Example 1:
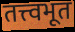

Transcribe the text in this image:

तत्त्वभूत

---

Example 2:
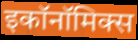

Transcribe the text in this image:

इकॉनॉमिक्‍स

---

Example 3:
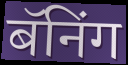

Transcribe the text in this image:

बॅनिंग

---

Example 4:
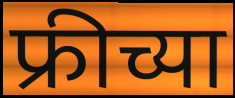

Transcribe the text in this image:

फ्रीच्या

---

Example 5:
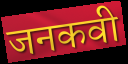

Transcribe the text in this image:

जनकवी